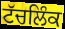
ਟੱਚਲਿੰਕ